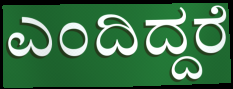
ಎಂದಿದ್ದರೆ